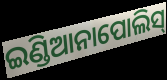
ଇଣ୍ଡିଆନାପୋଲିସ୍